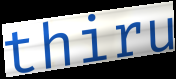
thiru